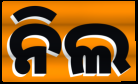
ନିଲ